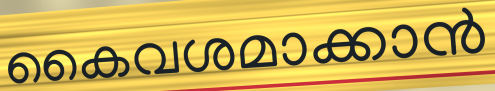
കൈവശമാക്കാൻ